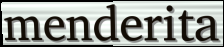
menderita